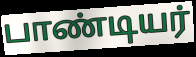
பாண்டியர்